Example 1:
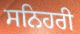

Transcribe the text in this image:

ਸਨਿਹਰੀ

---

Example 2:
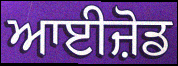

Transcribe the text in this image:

ਆਈਜ਼ੋਡ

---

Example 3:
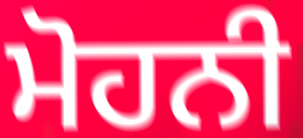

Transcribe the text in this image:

ਮੋਹਨੀ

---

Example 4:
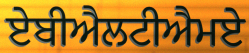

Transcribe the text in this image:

ਏਬੀਐਲਟੀਐਮਏ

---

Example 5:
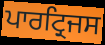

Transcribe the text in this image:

ਪਾਰਟ੍ਰਿਜਸ